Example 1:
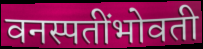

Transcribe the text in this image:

वनस्पतींभोवती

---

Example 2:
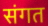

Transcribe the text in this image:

संगत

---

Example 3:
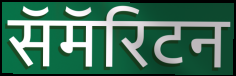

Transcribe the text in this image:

सॅमॅरिटन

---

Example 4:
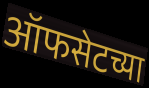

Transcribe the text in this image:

ऑफसेटच्या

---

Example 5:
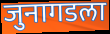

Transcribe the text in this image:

जुनागडला